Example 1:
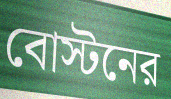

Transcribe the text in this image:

বোস্টনের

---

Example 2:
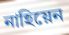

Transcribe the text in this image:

নাহিয়েন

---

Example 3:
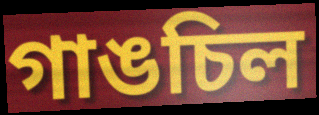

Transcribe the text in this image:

গাঙচিল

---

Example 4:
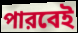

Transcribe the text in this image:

পারবেই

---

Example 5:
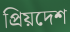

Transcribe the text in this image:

প্রিয়দেশ